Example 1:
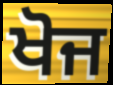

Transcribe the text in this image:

ਖੋਜ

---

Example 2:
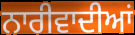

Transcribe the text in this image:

ਨਾਰੀਵਾਦੀਆਂ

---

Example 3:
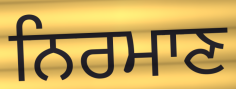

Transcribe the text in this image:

ਨਿਰਮਾਣ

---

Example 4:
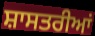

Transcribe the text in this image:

ਸ਼ਾਸਤਰੀਆਂ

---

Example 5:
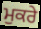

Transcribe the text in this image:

ਮੁਕਰੇ